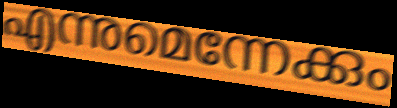
എന്നുമെന്നേക്കും